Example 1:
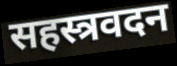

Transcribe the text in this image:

सहस्त्रवदन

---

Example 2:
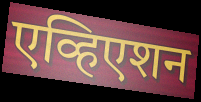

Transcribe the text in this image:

एव्हिएशन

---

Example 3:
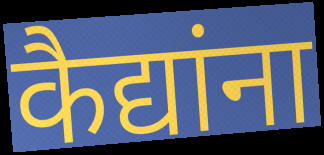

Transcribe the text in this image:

कैद्यांना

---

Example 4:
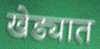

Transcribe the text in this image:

खेड्यात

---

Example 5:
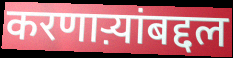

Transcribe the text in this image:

करणाऱ्‍यांबद्दल